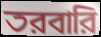
তরবারি